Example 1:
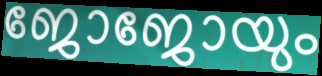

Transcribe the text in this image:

ജോജോയും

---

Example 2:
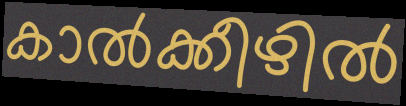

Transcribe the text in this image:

കാൽക്കീഴിൽ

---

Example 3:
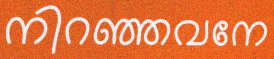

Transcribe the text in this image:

നിറഞ്ഞവനേ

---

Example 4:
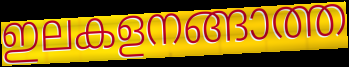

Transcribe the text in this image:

ഇലകളനങ്ങാത്ത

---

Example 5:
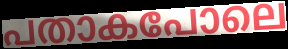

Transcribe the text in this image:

പതാകപോലെ